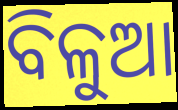
ବିଳୁଆ